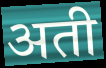
अती